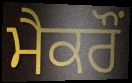
ਮੈਕਰੌਂ